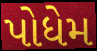
પોધેમ